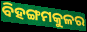
ବିହଙ୍ଗମକୁଳର